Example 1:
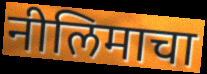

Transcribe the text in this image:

नीलिमाचा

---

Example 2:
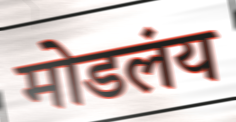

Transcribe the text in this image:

मोडलंय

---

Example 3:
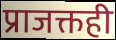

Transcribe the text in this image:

प्राजक्तही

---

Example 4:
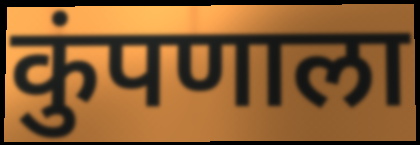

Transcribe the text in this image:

कुंपणाला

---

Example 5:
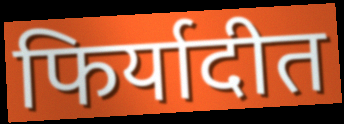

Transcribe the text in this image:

फिर्यादीत